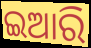
ଇଆରି